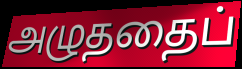
அழுததைப்